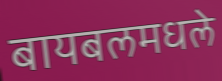
बायबलमधले